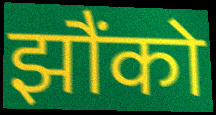
झौंको